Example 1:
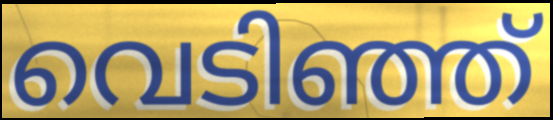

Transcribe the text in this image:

വെടിഞ്ഞ്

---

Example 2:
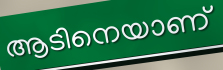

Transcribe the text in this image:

ആടിനെയാണ്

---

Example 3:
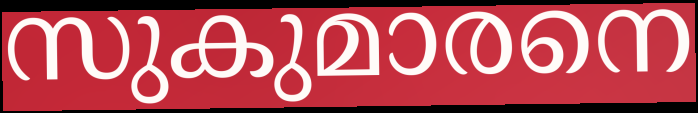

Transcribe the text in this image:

സുകുമാരനെ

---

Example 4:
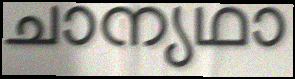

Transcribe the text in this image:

ചാന്യഥാ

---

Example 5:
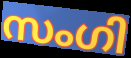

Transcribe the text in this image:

സംഗി